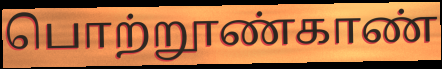
பொற்றூண்காண்